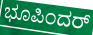
ಭೂಪಿಂದರ್